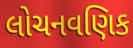
લોચનવણિક